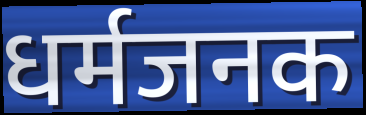
धर्मजनक